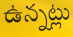
ఉన్నట్లు